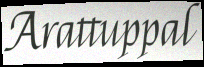
Arattuppal